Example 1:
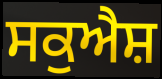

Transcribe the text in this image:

ਸਕੁਐਸ਼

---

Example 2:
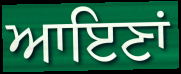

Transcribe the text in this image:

ਆਇਣਾਂ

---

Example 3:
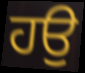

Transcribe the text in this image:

ਹਉ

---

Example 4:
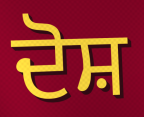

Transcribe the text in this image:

ਦੋਸ਼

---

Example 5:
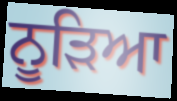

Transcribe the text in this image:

ਨੂੜਿਆ